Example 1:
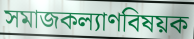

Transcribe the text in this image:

সমাজকল্যাণবিষয়ক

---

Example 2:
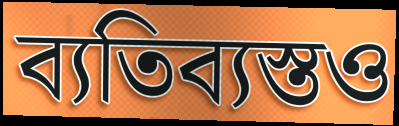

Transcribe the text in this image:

ব্যতিব্যস্তও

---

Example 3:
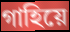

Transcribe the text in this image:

গাহিয়ে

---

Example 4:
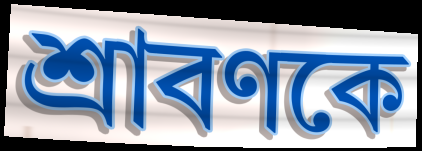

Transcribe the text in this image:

শ্রাবণকে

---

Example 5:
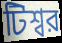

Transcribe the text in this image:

টিশ্বর